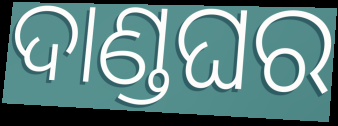
ଦାଣ୍ଡଘର